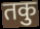
तकु